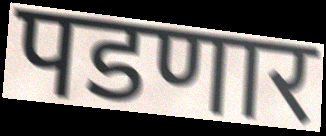
पडणार